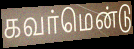
கவர்மென்டு